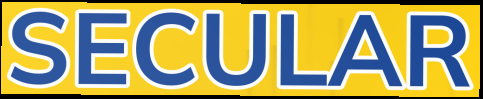
SECULAR